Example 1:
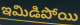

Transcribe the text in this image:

ఇమిడిపోయి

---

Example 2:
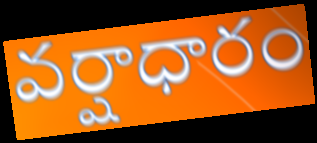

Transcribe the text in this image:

వర్షాధారం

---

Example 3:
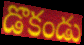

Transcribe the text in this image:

డొకండు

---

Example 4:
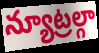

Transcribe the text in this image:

న్యూట్రల్గా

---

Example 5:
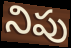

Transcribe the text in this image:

నిపు